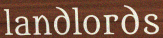
landlords